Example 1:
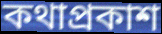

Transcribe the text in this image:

কথাপ্রকাশ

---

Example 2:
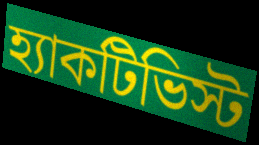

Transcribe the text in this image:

হ্যাকটিভিস্ট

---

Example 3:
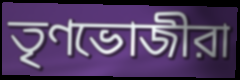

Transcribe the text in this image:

তৃণভোজীরা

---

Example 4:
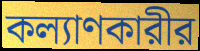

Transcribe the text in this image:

কল্যাণকারীর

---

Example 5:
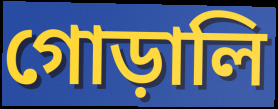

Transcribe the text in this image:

গোড়ালি